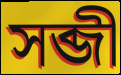
সব্জী